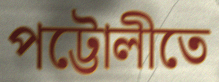
পট্টোলীতে